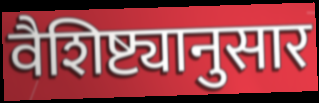
वैशिष्ट्यानुसार